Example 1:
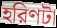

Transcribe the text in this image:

হরিণটা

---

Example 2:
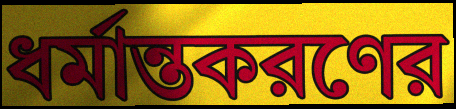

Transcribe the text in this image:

ধর্মান্তকরণের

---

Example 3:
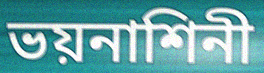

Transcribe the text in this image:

ভয়নাশিনী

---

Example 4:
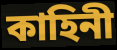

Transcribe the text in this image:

কাহিনী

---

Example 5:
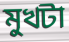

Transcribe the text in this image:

মুখটা